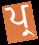
ਪ੍ਰ